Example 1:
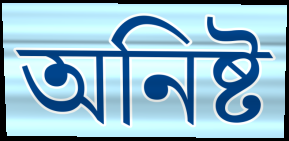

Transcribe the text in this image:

অনিষ্ট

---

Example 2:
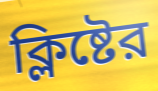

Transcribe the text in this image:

ক্লিষ্টের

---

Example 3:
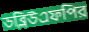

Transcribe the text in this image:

ডব্লিউএফপির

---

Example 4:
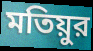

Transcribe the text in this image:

মতিয়ুর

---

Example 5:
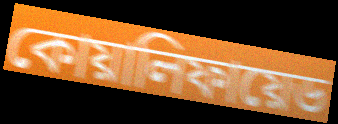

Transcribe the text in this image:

কোয়ালিফায়েড